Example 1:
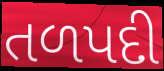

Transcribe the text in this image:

તળપદી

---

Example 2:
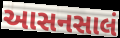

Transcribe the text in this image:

આસનસાલં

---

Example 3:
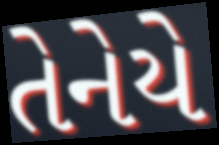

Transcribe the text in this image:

તેનેયે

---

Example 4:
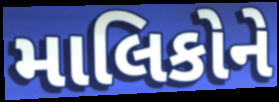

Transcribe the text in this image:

માલિકોને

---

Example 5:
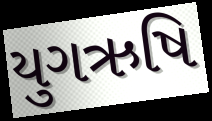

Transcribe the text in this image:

યુગઋષિ